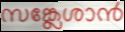
സങ്ക്ലേശാൻ